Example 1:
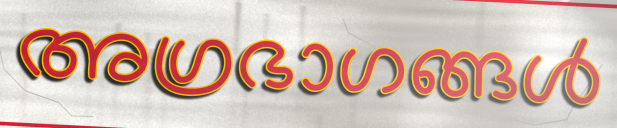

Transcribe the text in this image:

അഗ്രഭാഗങ്ങൾ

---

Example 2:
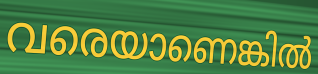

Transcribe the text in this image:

വരെയാണെങ്കിൽ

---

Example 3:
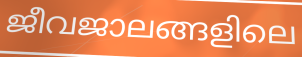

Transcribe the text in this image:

ജീവജാലങ്ങളിലെ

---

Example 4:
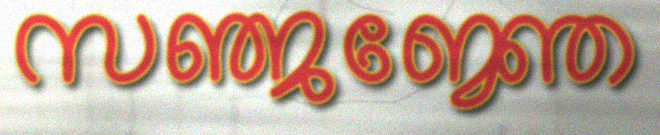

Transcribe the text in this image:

സഞ്ജജ്ഞേ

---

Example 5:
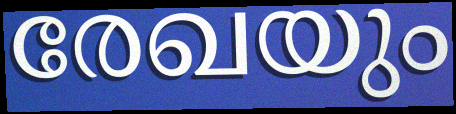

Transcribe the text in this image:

രേഖയും